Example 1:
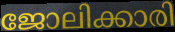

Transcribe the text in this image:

ജോലിക്കാരി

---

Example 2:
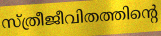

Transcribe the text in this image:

സ്ത്രീജീവിതത്തിന്റെ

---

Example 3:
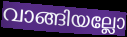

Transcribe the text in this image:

വാങ്ങിയല്ലോ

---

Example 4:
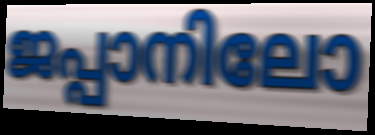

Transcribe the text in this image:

ജപ്പാനിലോ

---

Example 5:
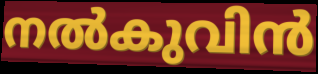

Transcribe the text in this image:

നൽകുവിൻ